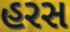
હરસ